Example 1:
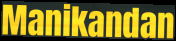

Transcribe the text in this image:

Manikandan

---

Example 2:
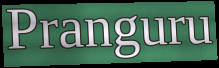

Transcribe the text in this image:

Pranguru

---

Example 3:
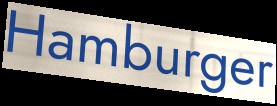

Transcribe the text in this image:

Hamburger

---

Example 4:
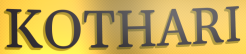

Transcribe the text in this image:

KOTHARI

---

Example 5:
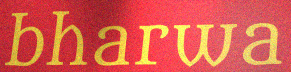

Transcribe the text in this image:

bharwa